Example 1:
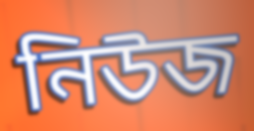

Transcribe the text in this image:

নিউজ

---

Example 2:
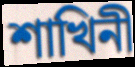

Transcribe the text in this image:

শাখিনী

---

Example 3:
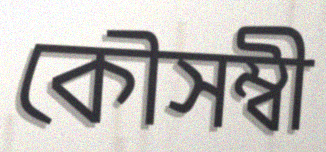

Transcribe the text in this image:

কৌসম্বী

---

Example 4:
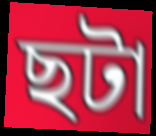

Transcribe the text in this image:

ছটা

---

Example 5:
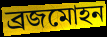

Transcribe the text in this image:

ব্ৰজমোহন